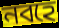
নবহে